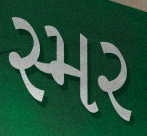
સ્મર